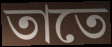
তাতে